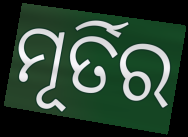
ମୂର୍ତିର